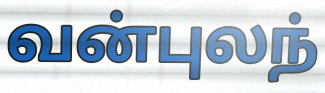
வன்புலந்